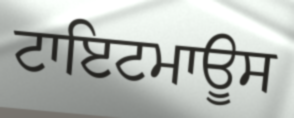
ਟਾਇਟਮਾਊਸ